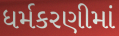
ધર્મકરણીમાં